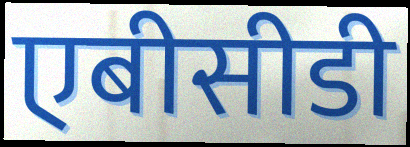
एबीसीडी